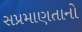
સપ્રમાણતાનો